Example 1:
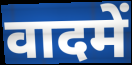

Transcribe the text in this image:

वादमें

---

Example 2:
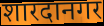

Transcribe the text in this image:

शारदानगर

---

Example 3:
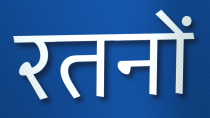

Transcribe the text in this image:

रतनों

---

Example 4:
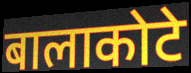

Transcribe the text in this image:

बालाकोटे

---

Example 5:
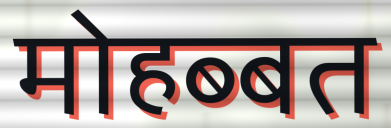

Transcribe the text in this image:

मोहब्‍बत